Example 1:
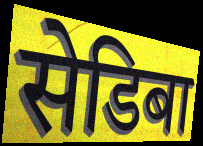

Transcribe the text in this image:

सेडिबा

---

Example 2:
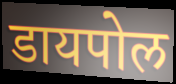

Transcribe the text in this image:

डायपोल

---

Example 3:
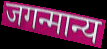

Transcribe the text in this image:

जगन्मान्य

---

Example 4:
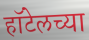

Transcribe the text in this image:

हॉटेलच्या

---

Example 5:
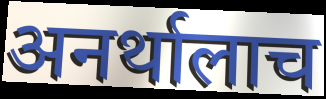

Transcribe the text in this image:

अनर्थालाच